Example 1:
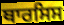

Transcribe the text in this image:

ਥਾਰਸਿਸ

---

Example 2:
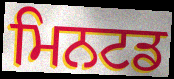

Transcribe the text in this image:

ਮਿਨਟਡ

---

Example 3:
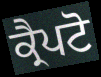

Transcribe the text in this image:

ਕ੍ਰੈਪਟੋ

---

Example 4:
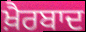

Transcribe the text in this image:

ਖ਼ੈਰਬਾਦ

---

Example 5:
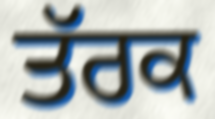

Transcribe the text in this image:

ਤੱਰਕ